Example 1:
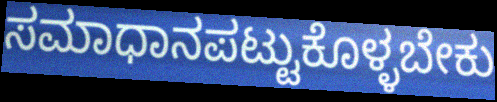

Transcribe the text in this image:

ಸಮಾಧಾನಪಟ್ಟುಕೊಳ್ಳಬೇಕು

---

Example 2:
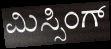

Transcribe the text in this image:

ಮಿಸ್ಸಿಂಗ್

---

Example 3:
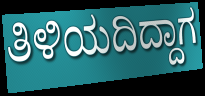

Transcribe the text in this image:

ತಿಳಿಯದಿದ್ದಾಗ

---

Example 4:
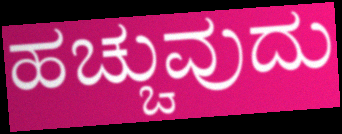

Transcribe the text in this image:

ಹಚ್ಚುವುದು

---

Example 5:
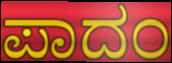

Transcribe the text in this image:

ಪಾದಂ